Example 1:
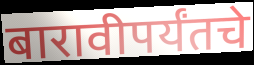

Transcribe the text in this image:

बारावीपर्यंतचे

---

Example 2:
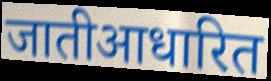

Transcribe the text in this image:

जातीआधारित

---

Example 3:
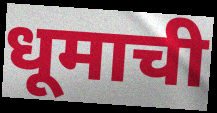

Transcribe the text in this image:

धूमाची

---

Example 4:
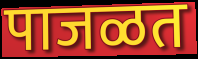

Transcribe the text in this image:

पाजळत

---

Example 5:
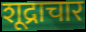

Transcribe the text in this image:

शूद्राचार